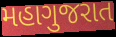
મહાગુજરાત